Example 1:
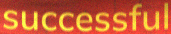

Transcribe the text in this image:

successful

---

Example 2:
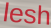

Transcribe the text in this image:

lesh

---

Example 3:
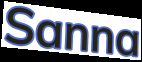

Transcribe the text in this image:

Sanna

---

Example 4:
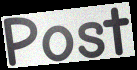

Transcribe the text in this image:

Post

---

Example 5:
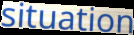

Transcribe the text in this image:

situation